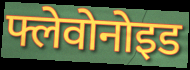
फ्लेवोनोइड